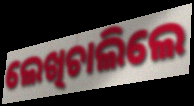
ଲେଖିଚାଲିଲେ